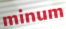
minum